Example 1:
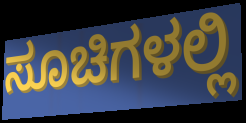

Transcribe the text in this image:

ಸೂಚಿಗಳಲ್ಲಿ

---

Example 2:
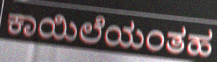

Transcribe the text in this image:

ಕಾಯಿಲೆಯಂತಹ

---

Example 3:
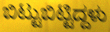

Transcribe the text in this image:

ಬಿಟ್ಟುಬಿಟ್ಟಿದ್ದಳು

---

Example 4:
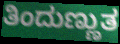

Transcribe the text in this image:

ತಿಂದುಣ್ಣುತ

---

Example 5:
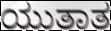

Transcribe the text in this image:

ಯುತಾತ